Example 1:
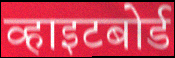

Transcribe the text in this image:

व्हाइटबोर्ड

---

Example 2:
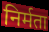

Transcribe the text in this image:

निर्मता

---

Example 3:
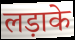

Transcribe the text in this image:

लड़ाके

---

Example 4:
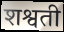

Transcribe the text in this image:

शश्वती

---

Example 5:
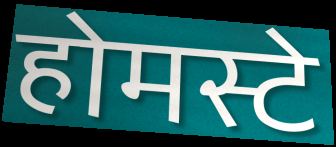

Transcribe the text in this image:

होमस्टे